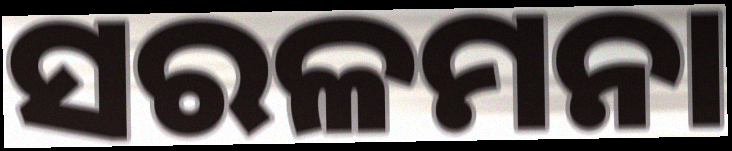
ସରଳମନା